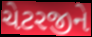
ચેટરજીને